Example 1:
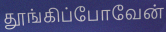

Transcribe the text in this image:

தூங்கிப்போவேன்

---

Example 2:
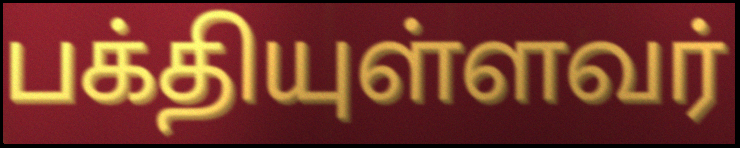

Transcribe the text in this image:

பக்தியுள்ளவர்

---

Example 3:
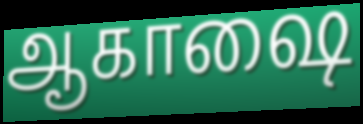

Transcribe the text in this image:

ஆகாஷை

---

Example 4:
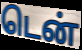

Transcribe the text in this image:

டென்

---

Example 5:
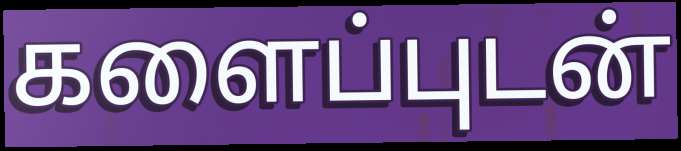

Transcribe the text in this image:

களைப்புடன்